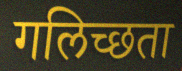
गलिच्छता